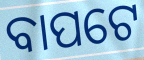
ବାପଟେ